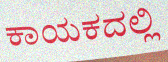
ಕಾಯಕದಲ್ಲಿ